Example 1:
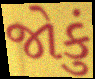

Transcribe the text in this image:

જોકું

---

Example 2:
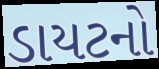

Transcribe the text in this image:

ડાયટનો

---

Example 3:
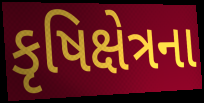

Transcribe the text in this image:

કૃષિક્ષેત્રના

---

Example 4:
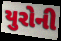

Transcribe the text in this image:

યુરોની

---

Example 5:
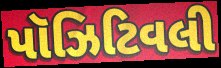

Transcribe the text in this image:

પૉઝિટિવલી